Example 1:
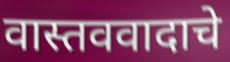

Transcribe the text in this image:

वास्तववादाचे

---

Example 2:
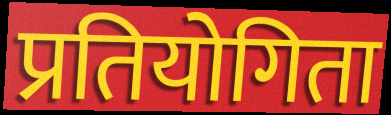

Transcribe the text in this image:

प्रतियोगिता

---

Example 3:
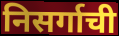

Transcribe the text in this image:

निसर्गाची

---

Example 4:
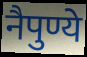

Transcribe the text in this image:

नैपुण्ये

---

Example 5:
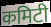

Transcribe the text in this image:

कमिटी